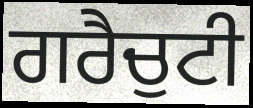
ਗਰੈਚੁਟੀ